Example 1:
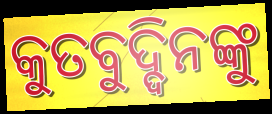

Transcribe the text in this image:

କୁତବୁଦ୍ଦିନଙ୍କୁ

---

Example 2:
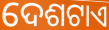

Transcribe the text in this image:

ଦେଶଟାଏ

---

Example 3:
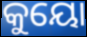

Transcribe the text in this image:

କୁୟୋ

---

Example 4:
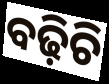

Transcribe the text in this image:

ବଢ଼ିଚି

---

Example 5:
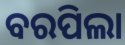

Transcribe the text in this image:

ବରପିଲା